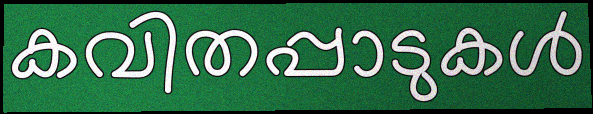
കവിതപ്പാടുകൾ